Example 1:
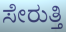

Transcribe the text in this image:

ಸೇರುತ್ತಿ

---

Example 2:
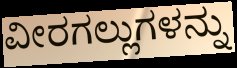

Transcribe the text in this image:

ವೀರಗಲ್ಲುಗಳನ್ನು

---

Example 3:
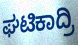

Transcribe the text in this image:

ಘಟಿಕಾದ್ರಿ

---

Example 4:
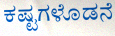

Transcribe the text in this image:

ಕಷ್ಟಗಳೊಡನೆ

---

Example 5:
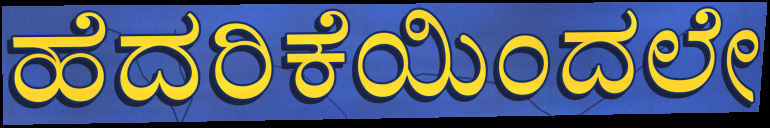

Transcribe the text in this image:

ಹೆದರಿಕೆಯಿಂದಲೇ